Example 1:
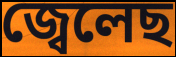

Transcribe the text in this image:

জ্বেলেছ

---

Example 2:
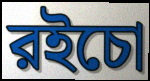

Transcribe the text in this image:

রইচো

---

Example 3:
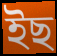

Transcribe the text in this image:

ইছ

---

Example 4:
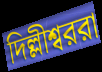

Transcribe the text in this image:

দিল্লীশ্বররা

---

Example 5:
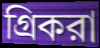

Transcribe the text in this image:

গ্রিকরা